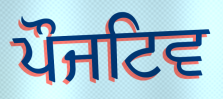
ਪੌਜਟਿਵ